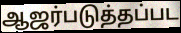
ஆஜர்படுத்தப்பட